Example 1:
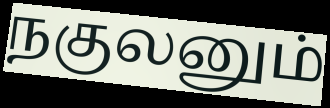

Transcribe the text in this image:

நகுலனும்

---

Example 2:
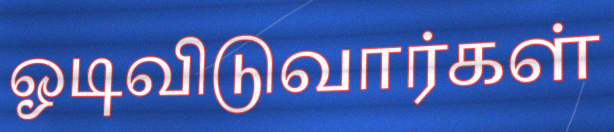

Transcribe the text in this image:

ஓடிவிடுவார்கள்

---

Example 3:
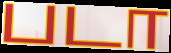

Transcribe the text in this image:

படா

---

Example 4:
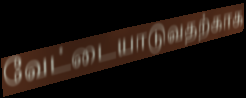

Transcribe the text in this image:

வேட்டையாடுவதற்காக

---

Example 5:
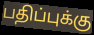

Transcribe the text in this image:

பதிப்புக்கு